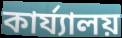
কাৰ্য্যালয়